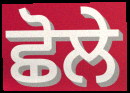
ਛੋਲੇ